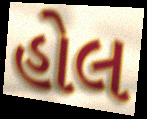
હોલ